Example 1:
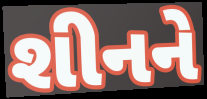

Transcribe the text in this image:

શીનને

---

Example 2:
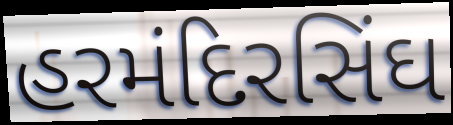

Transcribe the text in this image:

હરમંદિરસિંઘ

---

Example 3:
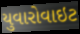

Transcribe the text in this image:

યુવારોવાઇટ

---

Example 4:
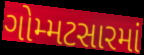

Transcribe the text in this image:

ગોમ્મટસારમાં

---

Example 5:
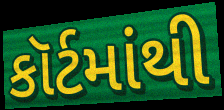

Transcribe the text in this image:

કૉર્ટમાંથી